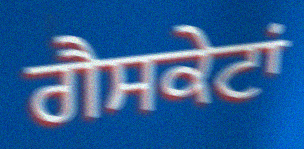
ਗੈਸਕੇਟਾਂ